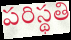
పరిస్థతి